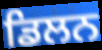
ਡਿਲਨ